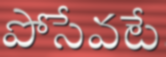
పోసేవటే